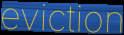
eviction